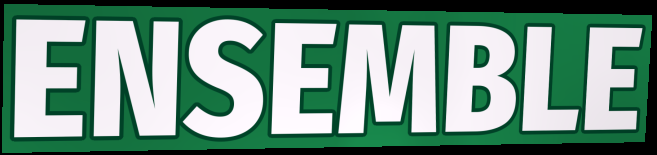
ENSEMBLE